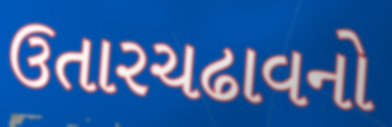
ઉતારચઢાવનો